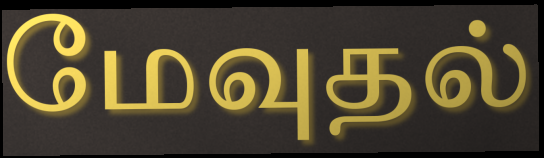
மேவுதல்